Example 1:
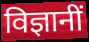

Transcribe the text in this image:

विज्ञानीं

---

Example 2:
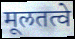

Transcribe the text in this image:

मूलतत्वे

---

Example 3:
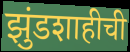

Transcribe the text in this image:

झुंडशाहीची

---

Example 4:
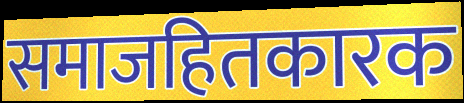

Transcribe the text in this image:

समाजहितकारक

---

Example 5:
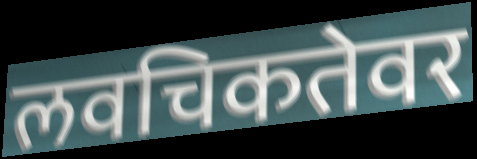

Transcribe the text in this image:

लवचिकतेवर